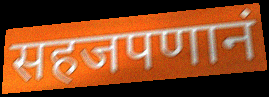
सहजपणानं